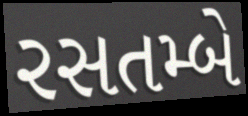
રસતમ્બે